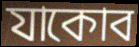
যাকোব